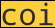
coi